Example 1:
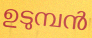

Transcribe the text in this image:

ഉടുമ്പൻ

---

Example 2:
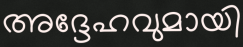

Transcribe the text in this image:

അദ്ദേഹവുമായി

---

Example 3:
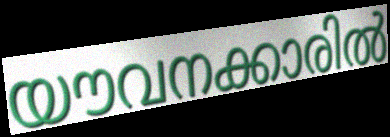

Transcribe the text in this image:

യൗവനക്കാരിൽ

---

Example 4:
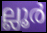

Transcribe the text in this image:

ല്ലൂർ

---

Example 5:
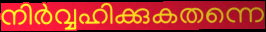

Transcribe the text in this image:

നിർവ്വഹിക്കുകതന്നെ